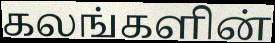
கலங்களின்